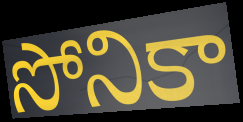
సోనికా